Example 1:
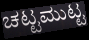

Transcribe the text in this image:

ಚಟ್ಟಮುಟ್ಟ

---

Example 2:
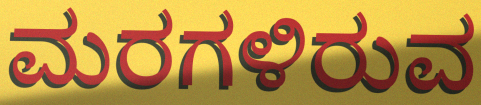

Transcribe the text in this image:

ಮರಗಳಿರುವ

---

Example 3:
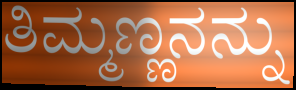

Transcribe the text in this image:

ತಿಮ್ಮಣ್ಣನನ್ನು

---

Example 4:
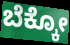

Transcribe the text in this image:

ಬೆಕ್ಕೋ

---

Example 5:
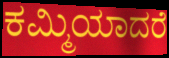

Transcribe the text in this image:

ಕಮ್ಮಿಯಾದರೆ